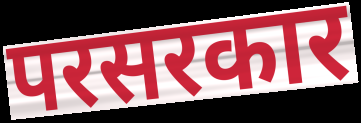
परसरकार